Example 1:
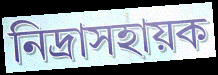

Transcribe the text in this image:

নিদ্রাসহায়ক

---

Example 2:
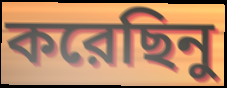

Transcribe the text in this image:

করেছিনু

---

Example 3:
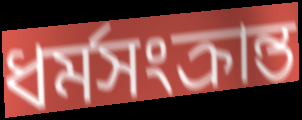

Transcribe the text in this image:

ধর্মসংক্রান্ত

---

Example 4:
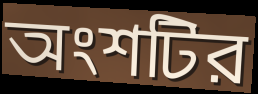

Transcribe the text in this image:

অংশটির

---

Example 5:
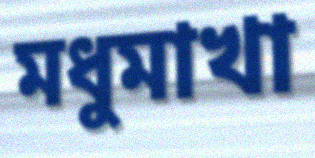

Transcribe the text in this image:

মধুমাখা